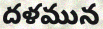
దళమున